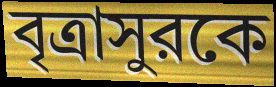
বৃত্রাসুরকে